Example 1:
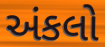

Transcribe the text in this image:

અંકલો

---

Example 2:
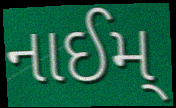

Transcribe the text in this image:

નાઈમ્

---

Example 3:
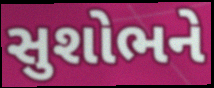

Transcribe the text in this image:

સુશોભને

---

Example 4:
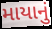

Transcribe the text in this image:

માયાનું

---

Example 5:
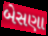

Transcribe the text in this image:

બેસણા